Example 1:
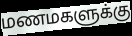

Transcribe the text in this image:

மணமகளுக்கு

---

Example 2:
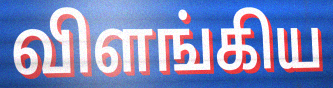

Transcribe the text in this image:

விளங்கிய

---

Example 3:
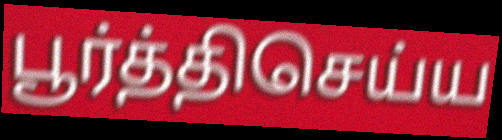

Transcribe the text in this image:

பூர்த்திசெய்ய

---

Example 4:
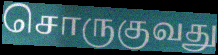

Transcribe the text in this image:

சொருகுவது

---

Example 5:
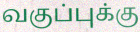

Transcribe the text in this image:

வகுப்புக்கு